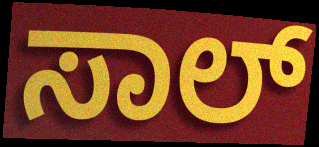
ಸಾಲ್